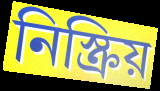
নিস্ক্রিয়